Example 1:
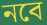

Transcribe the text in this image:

নবে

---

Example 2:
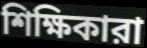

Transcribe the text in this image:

শিক্ষিকারা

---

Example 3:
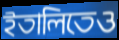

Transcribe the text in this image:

ইতালিতেও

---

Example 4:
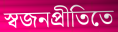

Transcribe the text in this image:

স্বজনপ্রীতিতে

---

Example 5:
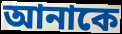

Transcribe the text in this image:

আনাকে